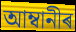
আম্বানীৰ